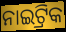
ନାଇଟ୍ରିକ